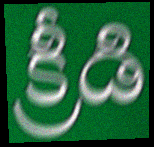
క్రీడి